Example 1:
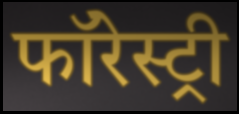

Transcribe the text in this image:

फॉरेस्ट्री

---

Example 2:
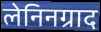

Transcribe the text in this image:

लेनिनग्राद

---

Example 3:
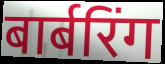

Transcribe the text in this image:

बार्बरिंग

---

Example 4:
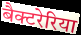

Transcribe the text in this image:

बैक्टरेरिया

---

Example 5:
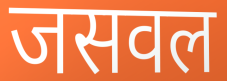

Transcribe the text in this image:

जसवल